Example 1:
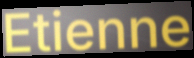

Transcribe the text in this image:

Etienne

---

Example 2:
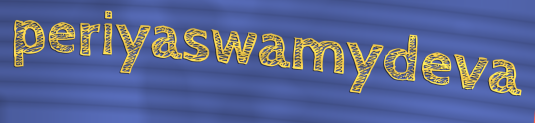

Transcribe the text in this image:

periyaswamydeva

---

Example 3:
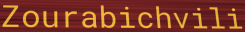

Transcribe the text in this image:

Zourabichvili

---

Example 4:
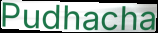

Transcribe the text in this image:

Pudhacha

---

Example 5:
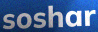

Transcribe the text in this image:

soshar